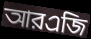
আরএজি